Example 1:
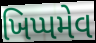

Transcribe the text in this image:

ખિપ્પમેવ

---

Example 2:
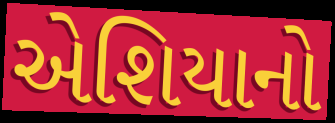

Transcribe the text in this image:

એશિયાનો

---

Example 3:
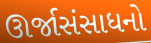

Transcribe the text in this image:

ઊર્જાસંસાધનો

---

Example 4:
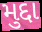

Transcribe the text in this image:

મુદ્દા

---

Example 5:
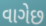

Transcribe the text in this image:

વાગેછ